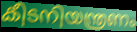
കീടനിയന്ത്രണം